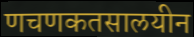
णचणकतसालयीन